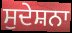
ਸੁਦੇਸ਼ਨਾ